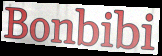
Bonbibi